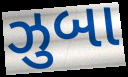
ઝુબા